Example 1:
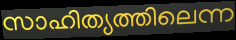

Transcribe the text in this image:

സാഹിത്യത്തിലെന്ന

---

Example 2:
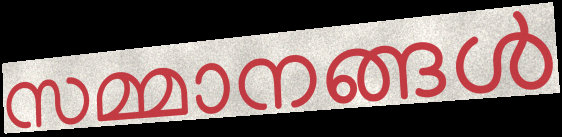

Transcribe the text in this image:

സമ്മാനങ്ങൾ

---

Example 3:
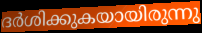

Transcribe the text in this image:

ദർശിക്കുകയായിരുന്നു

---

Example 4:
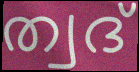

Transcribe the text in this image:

ത്വദ്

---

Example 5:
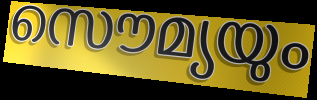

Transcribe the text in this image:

സൌമ്യയും